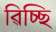
ৱিচ্ছি